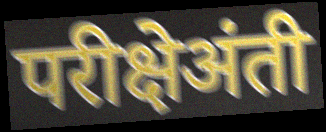
परीक्षेअंती